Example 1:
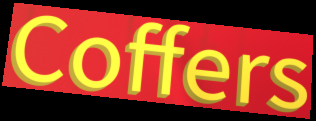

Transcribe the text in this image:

Coffers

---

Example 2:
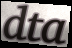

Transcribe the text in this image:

dta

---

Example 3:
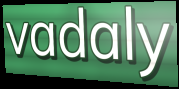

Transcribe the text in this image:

vadaly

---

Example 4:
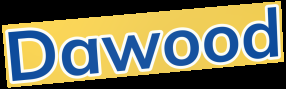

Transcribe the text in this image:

Dawood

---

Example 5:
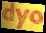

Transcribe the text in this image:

dyo